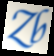
Zb